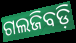
ଗଲଜିବଡ଼ି